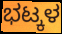
ಭಟ್ಕಳ